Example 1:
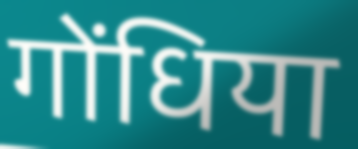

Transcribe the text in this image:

गोंधिया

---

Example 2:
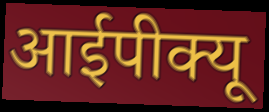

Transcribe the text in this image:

आईपीक्यू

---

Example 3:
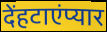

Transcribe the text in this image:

देंहटाएंप्यार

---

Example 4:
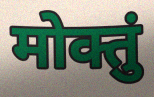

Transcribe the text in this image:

मोक्तुं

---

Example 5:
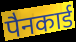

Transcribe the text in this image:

पैनकार्ड